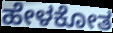
ಹೇಳಕೋತ